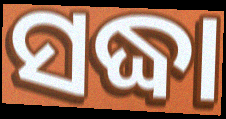
ସଦ୍ଧା